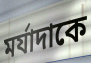
মর্যাদাকে